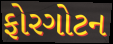
ફોરગોટન